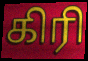
கிரி